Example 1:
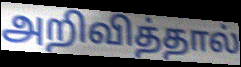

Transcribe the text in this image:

அறிவித்தால்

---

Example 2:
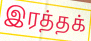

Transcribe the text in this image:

இரத்தக்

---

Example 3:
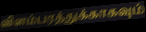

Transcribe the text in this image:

விளம்பரத்துக்காகவும்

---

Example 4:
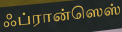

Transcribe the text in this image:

ஃப்ரான்ஸெஸ்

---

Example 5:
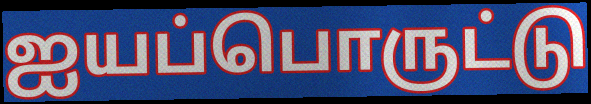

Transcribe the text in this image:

ஐயப்பொருட்டு